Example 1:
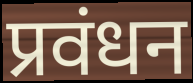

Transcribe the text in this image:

प्रवंधन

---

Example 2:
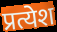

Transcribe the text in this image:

प्रत्येश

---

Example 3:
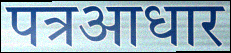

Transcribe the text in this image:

पत्रआधार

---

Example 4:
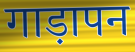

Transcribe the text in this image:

गाड़ापन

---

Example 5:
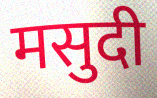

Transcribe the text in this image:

मसुदी